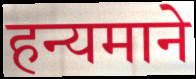
हन्यमाने